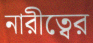
নারীত্বের